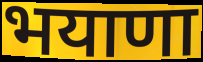
भयाणा